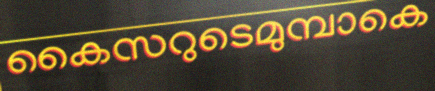
കൈസറുടെമുമ്പാകെ